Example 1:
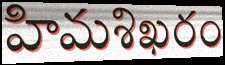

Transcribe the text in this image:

హిమశిఖరం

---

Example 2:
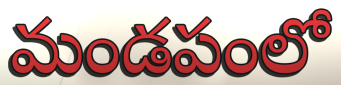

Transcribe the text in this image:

మండపంలో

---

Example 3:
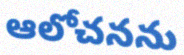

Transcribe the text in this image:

ఆలోచనను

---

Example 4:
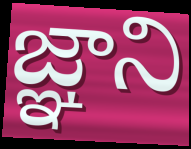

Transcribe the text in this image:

జ్ఞాని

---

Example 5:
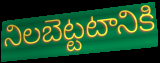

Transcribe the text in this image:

నిలబెట్టటానికి